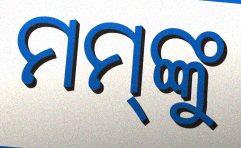
ମମ୍‌ଙ୍କୁ